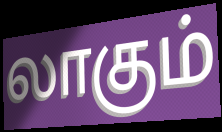
லாகும்